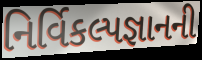
નિર્વિકલ્પજ્ઞાનની